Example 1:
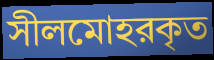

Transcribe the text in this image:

সীলমোহরকৃত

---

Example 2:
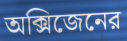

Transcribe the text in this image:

অক্সিজেনের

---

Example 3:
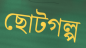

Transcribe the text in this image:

ছোটগল্প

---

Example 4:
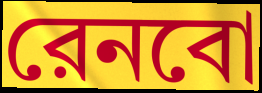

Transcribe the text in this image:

রেনবো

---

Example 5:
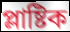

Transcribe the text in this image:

প্লাষ্টিক